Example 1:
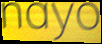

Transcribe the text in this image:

nayo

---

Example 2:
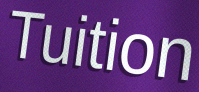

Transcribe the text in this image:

Tuition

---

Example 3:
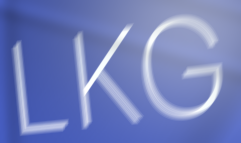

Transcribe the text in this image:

LKG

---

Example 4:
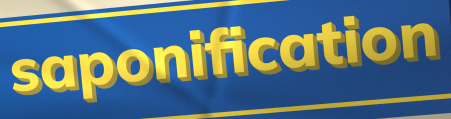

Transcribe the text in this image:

saponification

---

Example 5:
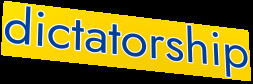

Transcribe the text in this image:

dictatorship